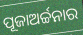
ପୂଜାଅର୍ଚ୍ଚନାର